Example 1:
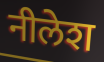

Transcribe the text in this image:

नीलेश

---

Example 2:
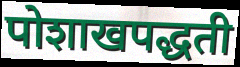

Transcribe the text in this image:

पोशाखपद्धती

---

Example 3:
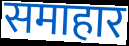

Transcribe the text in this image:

समाहार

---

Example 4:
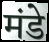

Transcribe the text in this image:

मंडे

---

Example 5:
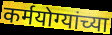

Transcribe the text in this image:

कर्मयोग्यांच्या